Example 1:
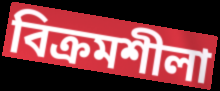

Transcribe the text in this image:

বিক্ৰমশীলা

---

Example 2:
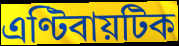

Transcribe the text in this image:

এণ্টিবায়টিক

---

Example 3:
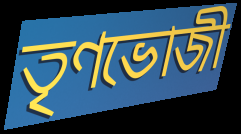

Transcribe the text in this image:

তৃণভোজী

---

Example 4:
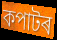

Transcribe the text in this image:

কপাটৰ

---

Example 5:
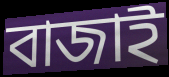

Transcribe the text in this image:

বাজাই